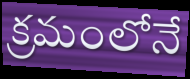
క్రమంలోనే